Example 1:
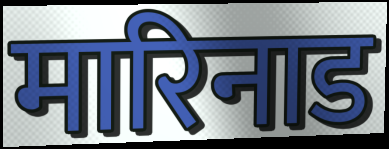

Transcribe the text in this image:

मारिनाड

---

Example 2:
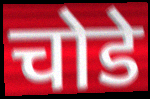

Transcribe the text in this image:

चोडे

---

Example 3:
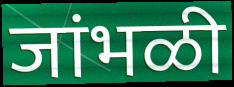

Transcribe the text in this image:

जांभळी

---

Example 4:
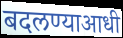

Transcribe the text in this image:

बदलण्याआधी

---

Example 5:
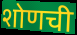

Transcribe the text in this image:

शोणची